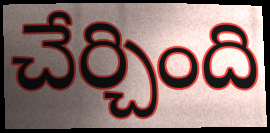
చేర్చింది